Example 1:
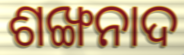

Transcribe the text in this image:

ଶଙ୍ଖନାଦ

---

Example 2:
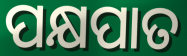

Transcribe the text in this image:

ପକ୍ଷପାତ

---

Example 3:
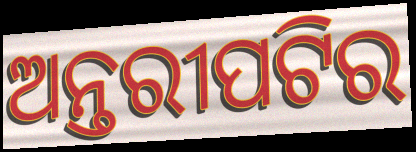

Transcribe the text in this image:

ଅନ୍ତରୀପଟିର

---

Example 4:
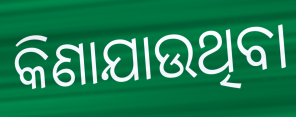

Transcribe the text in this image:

କିଣାଯାଉଥିବା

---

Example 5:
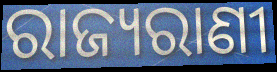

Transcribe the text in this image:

ରାଜ୍ୟରାଣୀ